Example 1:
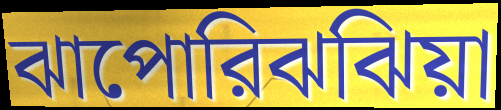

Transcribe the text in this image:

ঝাপোরিঝঝিয়া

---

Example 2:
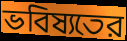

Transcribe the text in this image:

ভবিষ্যতের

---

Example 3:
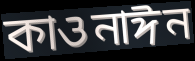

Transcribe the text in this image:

কাওনাঈন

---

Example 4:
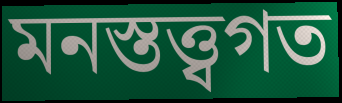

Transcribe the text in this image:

মনস্তত্ত্বগত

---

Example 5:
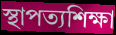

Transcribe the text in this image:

স্থাপত্যশিক্ষা